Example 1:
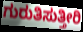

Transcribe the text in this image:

ಗುರುತಿಸುತ್ತೀರಿ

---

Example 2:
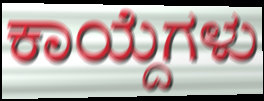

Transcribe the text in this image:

ಕಾಯ್ದೆಗಳು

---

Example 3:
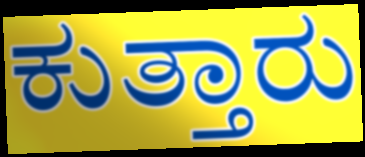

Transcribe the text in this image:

ಕುತ್ತಾರು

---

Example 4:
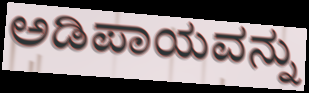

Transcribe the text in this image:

ಅಡಿಪಾಯವನ್ನು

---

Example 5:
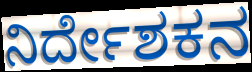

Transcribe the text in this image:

ನಿರ್ದೇಶಕನ